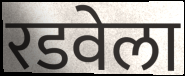
रडवेला